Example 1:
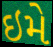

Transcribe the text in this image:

ઇમે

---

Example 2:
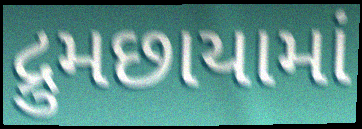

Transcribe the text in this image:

દ્રુમછાયામાં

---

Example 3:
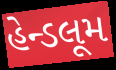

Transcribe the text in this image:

હેન્ડલૂમ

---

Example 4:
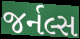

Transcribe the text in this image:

જર્નલ્સ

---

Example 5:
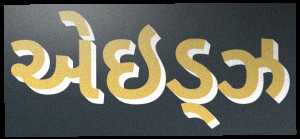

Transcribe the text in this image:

એઇડ્ઝ